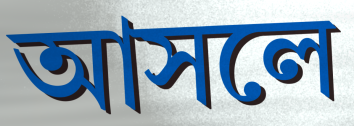
আসলে